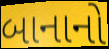
બાનાનો